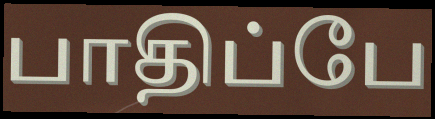
பாதிப்பே